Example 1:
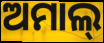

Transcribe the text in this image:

ଅମାଲ୍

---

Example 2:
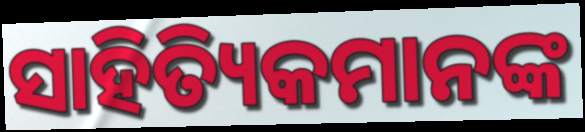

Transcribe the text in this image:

ସାହିତ୍ୟିକମାନଙ୍କ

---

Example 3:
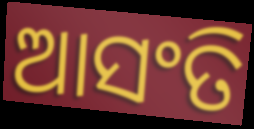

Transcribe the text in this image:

ଆସଂତି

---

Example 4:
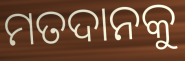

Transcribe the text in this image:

ମତଦାନକୁ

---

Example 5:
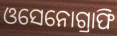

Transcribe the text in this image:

ଓସେନୋଗ୍ରାଫି